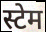
स्टेम